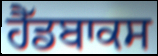
ਹੈੱਡਬਾਕਸ